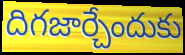
దిగజార్చేందుకు